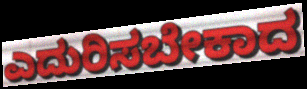
ಎದುರಿಸಬೇಕಾದ